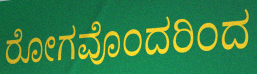
ರೋಗವೊಂದರಿಂದ